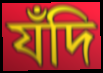
যঁদি